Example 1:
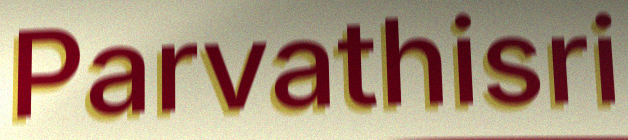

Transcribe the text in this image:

Parvathisri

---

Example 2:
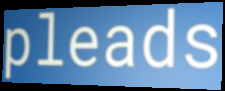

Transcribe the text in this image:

pleads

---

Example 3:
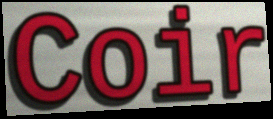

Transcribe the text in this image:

Coir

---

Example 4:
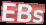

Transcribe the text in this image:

EBs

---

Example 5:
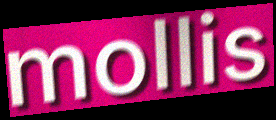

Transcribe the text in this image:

mollis